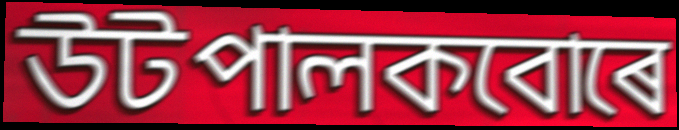
উটপালকবোৰে